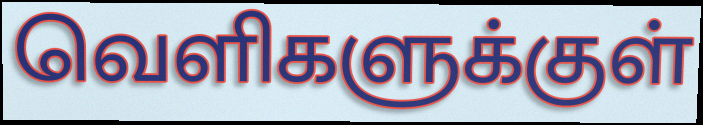
வெளிகளுக்குள்